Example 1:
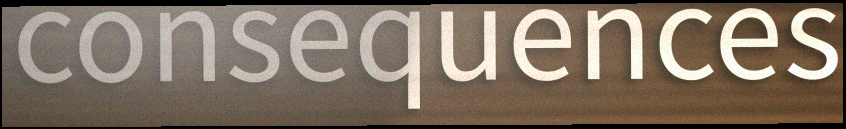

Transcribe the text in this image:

consequences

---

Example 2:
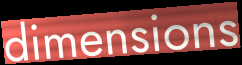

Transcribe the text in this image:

dimensions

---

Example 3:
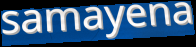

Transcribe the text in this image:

samayena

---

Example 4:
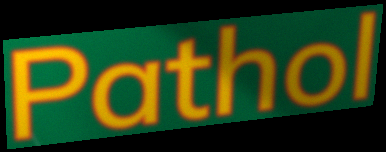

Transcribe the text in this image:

Pathol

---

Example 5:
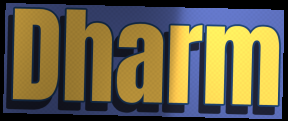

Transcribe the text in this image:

Dharm